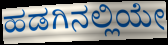
ಹಡಗಿನಲ್ಲಿಯೇ